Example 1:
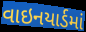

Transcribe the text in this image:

વાઇનયાર્ડમાં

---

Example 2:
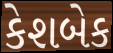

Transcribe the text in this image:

કેશબેક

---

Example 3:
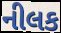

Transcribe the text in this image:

નીલક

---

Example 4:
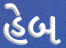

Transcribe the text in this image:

હેબ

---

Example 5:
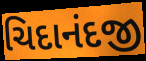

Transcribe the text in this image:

ચિદાનંદજી